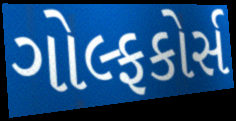
ગોલ્ફકોર્સ